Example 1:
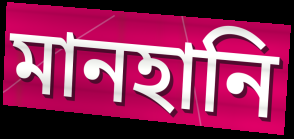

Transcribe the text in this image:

মানহানি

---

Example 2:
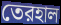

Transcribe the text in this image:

তেরহাল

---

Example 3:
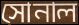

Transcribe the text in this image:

সোনাল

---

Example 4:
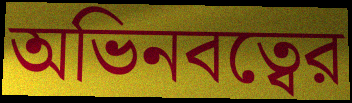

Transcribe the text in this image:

অভিনবত্বের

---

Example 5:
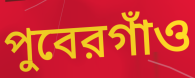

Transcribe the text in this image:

পুবেরগাঁও